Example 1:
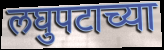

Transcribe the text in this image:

लघुपटाच्या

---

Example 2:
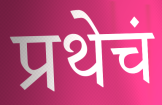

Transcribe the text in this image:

प्रथेचं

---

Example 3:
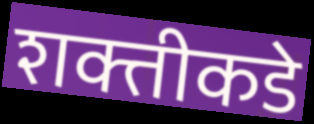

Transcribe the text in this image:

शक्तीकडे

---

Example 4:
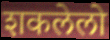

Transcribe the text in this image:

शकलेलो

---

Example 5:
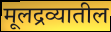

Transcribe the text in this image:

मूलद्रव्यातील